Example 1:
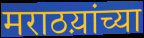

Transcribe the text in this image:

मराठय़ांच्या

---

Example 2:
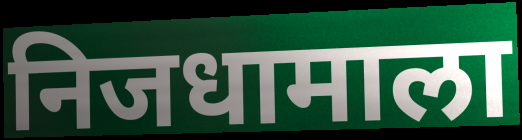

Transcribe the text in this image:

निजधामाला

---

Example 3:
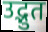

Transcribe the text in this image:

उद्भुत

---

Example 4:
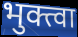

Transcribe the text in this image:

भुक्त्वा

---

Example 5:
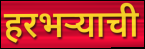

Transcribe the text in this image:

हरभऱ्याची